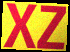
XZ